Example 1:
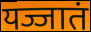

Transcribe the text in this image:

यज्जातं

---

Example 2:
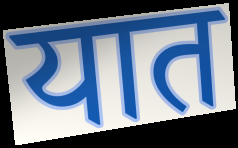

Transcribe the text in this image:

यात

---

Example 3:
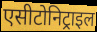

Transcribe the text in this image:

एसीटोनिट्राइल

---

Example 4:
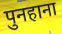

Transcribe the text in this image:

पुनहाना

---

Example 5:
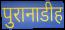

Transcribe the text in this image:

पुरानाडीह